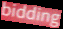
bidding